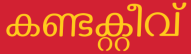
കണ്ടക്റ്റീവ്